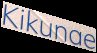
Kikunae